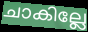
ചാകില്ലേ